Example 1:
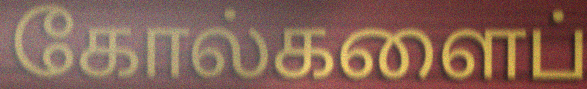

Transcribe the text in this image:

கோல்களைப்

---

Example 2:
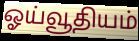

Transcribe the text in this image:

ஓய்வூதியம்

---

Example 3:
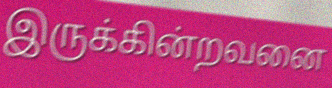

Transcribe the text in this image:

இருக்கின்றவனை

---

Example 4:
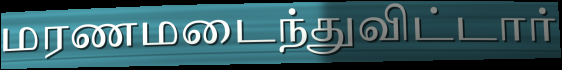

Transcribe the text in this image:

மரணமடைந்துவிட்டார்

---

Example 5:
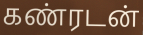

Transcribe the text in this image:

கண்ரடன்